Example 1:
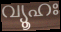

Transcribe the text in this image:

വ്യൂഹഃ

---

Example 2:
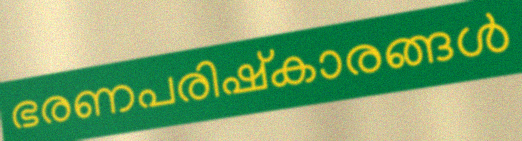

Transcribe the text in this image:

ഭരണപരിഷ്കാരങ്ങൾ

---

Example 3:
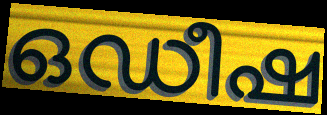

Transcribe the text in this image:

ഒഡീഷ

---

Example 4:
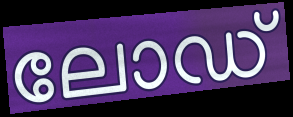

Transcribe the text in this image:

ലോഡ്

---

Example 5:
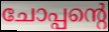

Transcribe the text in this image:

ചോപ്പന്റെ